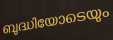
ബുദ്ധിയോടെയും